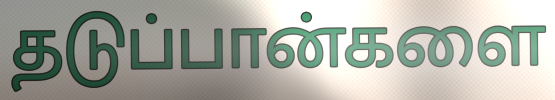
தடுப்பான்களை